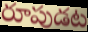
రూపుడట